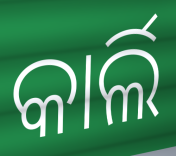
କାର୍ଲି